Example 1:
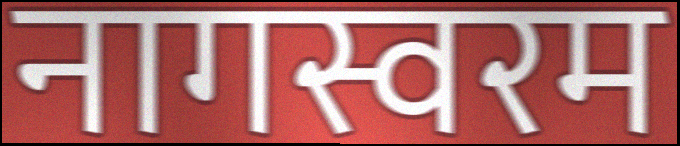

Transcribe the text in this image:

नागस्वरम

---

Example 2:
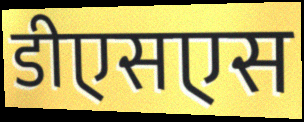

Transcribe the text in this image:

डीएसएस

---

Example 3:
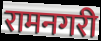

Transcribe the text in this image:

रामनगरी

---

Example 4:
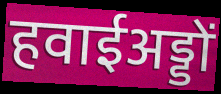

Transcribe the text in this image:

हवाईअड्डों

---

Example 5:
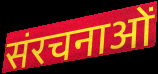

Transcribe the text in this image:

संरचनाओं